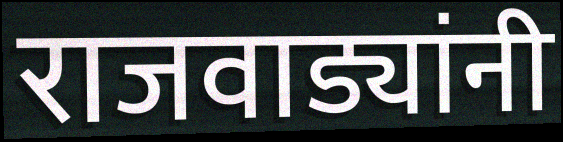
राजवाड्यांनी